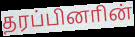
தரப்பினரின்